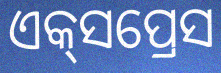
ଏକ୍‌ସପ୍ରେସ